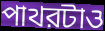
পাথরটাও